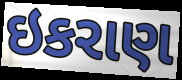
ઇકરાણ